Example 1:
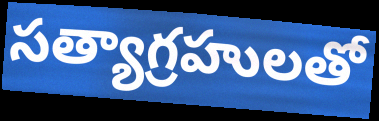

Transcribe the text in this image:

సత్యాగ్రహులతో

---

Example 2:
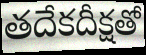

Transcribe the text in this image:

తదేకదీక్షతో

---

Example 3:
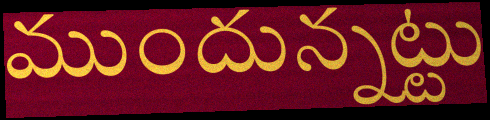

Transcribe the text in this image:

ముందున్నట్టు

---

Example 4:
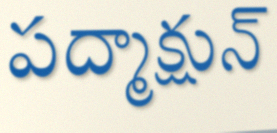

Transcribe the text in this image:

పద్మాక్షున్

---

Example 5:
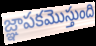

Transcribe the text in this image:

జ్ఞాపకమొస్తుంది